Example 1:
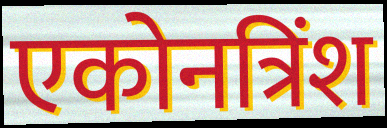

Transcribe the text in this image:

एकोनत्रिंश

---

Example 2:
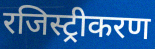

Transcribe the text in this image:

रजिस्ट्रीकरण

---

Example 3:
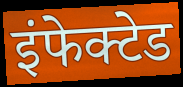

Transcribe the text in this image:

इंफेक्टेड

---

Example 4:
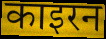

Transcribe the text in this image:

काइरन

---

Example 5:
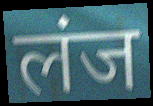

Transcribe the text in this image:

लंज